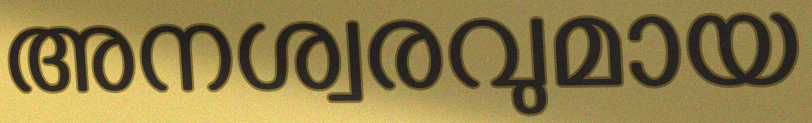
അനശ്വരവുമായ